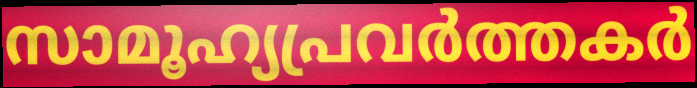
സാമൂഹ്യപ്രവർത്തകർ